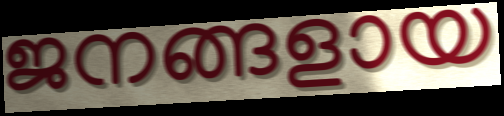
ജനങ്ങളായ